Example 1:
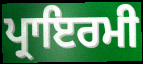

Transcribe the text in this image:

ਪ੍ਰਾਇਰਮੀ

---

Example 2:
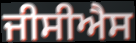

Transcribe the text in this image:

ਜੀਸੀਐਸ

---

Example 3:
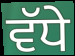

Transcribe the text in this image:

ਵੱਧੇ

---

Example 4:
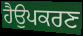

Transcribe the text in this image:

ਹੈਉਪਕਰਣ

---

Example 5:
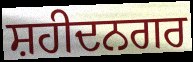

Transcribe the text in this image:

ਸ਼ਹੀਦਨਗਰ